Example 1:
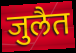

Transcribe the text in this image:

जुलैत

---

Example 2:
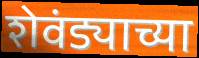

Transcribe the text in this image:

शेवंड्याच्या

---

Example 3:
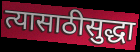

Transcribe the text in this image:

त्यासाठीसुद्धा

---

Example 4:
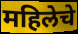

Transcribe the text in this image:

महिलेचे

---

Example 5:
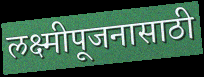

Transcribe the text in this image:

लक्ष्मीपूजनासाठी